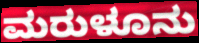
ಮರುಳೂನು